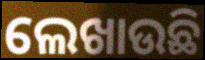
ଲେଖାଉଛି